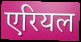
एरियल